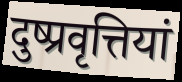
दुष्प्रवृत्तियां